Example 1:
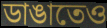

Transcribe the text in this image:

ডাঙাতেও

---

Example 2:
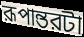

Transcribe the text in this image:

রূপান্তরটা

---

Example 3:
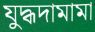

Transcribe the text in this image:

যুদ্ধদামামা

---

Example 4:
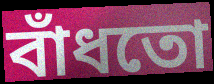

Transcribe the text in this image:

বাঁধতো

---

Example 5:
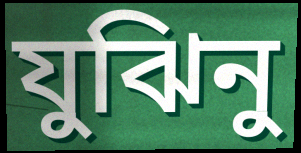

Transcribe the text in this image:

যুঝিনু